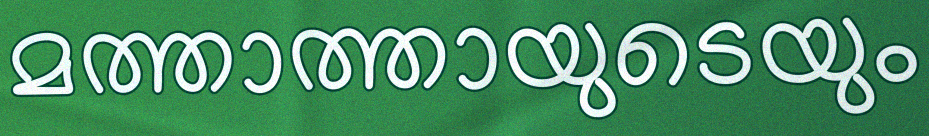
മത്താത്തായുടെയും